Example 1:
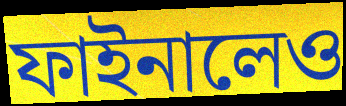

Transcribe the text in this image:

ফাইনালেও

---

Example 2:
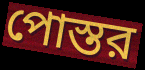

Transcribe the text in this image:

পোস্তর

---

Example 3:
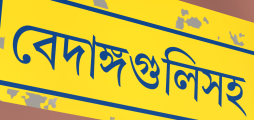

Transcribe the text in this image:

বেদাঙ্গগুলিসহ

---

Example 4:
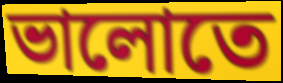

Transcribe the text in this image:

ভালোতে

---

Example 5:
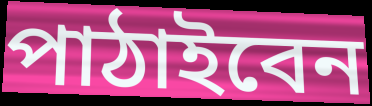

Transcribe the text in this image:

পাঠাইবেন